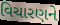
વિચારણને